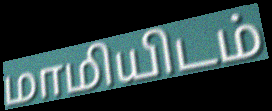
மாமியிடம்